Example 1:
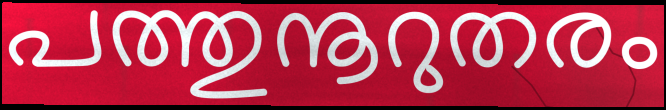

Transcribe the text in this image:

പത്തുനൂറുതരം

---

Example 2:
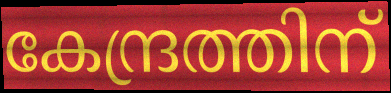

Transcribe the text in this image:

കേന്ദ്രത്തിന്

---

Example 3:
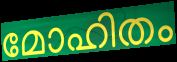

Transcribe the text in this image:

മോഹിതം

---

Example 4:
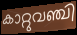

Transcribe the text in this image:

കാറ്റുവഞ്ചി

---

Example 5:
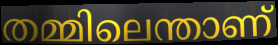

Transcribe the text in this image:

തമ്മിലെന്താണ്